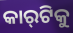
କାର୍‌ଟିକୁ